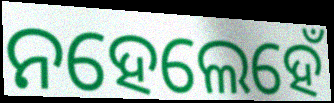
ନହେଲେହେଁ